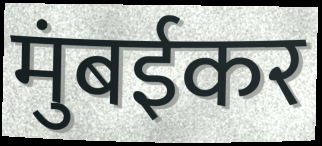
मुंबईकर